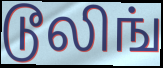
டூலிங்